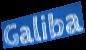
Galiba